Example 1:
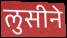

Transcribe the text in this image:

लुसीने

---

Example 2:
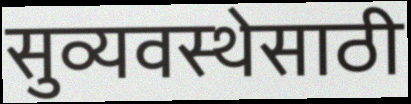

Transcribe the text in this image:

सुव्यवस्थेसाठी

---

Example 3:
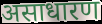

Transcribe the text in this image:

असाधारण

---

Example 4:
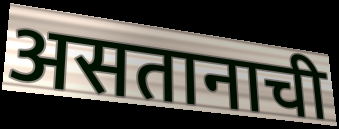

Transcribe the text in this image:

असतानाची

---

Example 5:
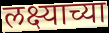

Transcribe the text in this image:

लक्ष्याच्या